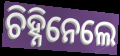
ଚିହ୍ନିନେଲେ